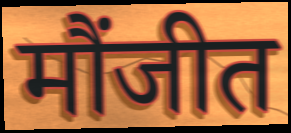
मौंजीत